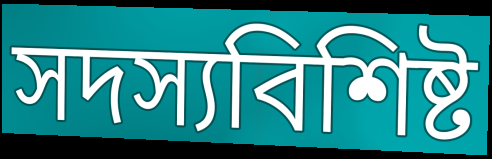
সদস্যবিশিষ্ট